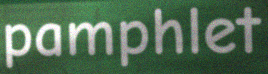
pamphlet